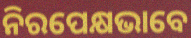
ନିରପେକ୍ଷଭାବେ